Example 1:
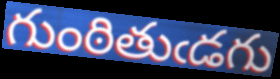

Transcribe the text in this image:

గుంఠితుఁడగు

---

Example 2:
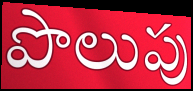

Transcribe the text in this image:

పొలుపు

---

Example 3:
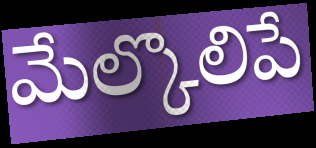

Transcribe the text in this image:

మేల్కొలిపే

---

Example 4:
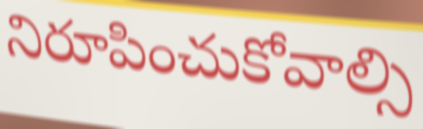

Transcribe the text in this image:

నిరూపించుకోవాల్సి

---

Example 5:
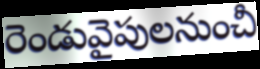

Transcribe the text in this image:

రెండువైపులనుంచీ